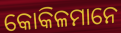
କୋକିଳମାନେ